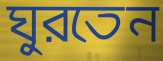
ঘুরতেন